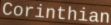
Corinthian